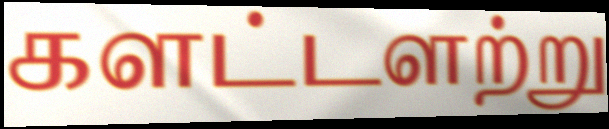
களட்டளற்று